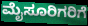
ಮೈಸೂರಿಗರಿಗೆ